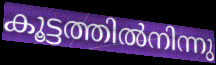
കൂട്ടത്തിൽനിന്നു